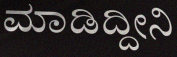
ಮಾಡಿದ್ದೀನಿ